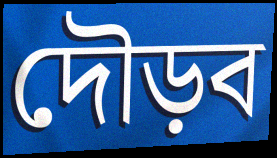
দৌড়ব